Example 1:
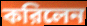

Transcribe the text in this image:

করিলেন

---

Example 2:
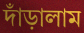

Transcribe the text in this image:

দাঁড়ালাম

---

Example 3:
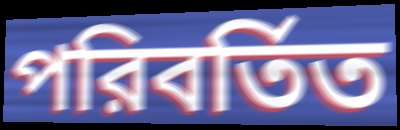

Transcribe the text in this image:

পরিবর্তিত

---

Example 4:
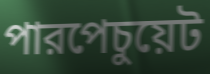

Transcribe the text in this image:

পারপেচুয়েট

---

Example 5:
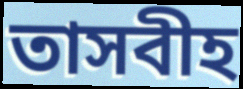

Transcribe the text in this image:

তাসবীহ